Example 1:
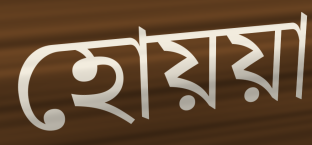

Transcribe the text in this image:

হোয়য়া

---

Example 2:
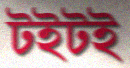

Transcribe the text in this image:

টইটই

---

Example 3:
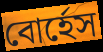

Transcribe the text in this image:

বোর্হেস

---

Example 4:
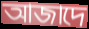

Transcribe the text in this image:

আজাদে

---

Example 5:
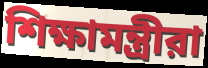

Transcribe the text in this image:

শিক্ষামন্ত্রীরা